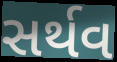
સર્થવ